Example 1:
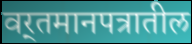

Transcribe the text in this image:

वर्तमानपत्रातील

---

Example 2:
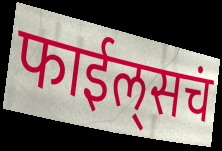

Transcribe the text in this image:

फाईल्सचं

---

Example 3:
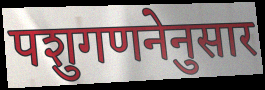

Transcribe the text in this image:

पशुगणनेनुसार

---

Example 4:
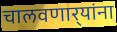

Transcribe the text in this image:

चालवणार्‍यांना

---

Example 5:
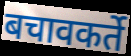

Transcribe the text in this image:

बचावकर्ते